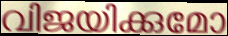
വിജയിക്കുമോ